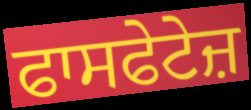
ਫਾਸਫੇਟੇਜ਼